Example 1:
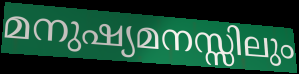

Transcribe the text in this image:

മനുഷ്യമനസ്സിലും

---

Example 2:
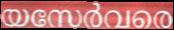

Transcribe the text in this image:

യസേർവരെ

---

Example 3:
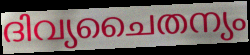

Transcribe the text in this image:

ദിവ്യചൈതന്യം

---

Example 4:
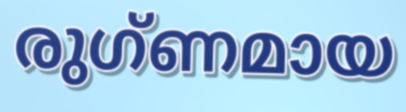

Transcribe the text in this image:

രുഗ്ണമായ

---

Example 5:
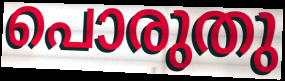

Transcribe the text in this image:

പൊരുതു